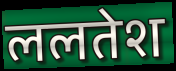
ललतेश